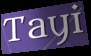
Tayi